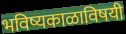
भविष्यकाळाविषयी